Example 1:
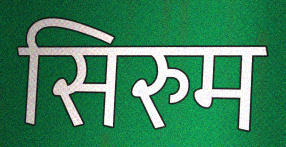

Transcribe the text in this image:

सिरुम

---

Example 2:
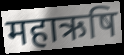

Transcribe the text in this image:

महाऋषि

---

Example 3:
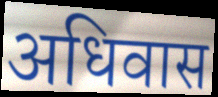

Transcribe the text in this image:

अधिवास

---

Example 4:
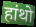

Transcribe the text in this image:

हांथो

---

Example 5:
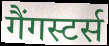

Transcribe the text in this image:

गैंगस्टर्स